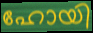
ഹോയി